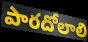
పారదోలాలి